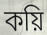
কয়ি